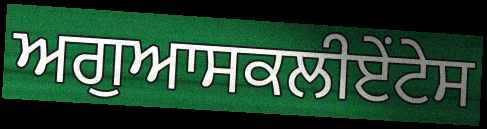
ਅਗੁਆਸਕਲੀਏਂਟੇਸ